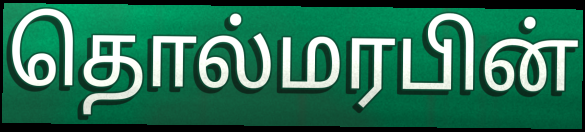
தொல்மரபின்